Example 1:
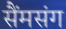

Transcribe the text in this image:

सैंमसंग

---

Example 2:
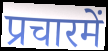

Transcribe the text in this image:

प्रचारमें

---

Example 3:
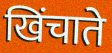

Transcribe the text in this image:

खिंचाते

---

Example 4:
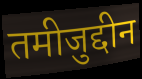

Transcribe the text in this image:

तमीजुद्दीन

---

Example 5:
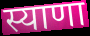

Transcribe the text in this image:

स्याणा